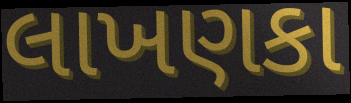
લાખણકા